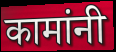
कामांनी